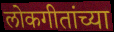
लोकगीतांच्या